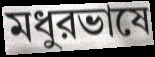
মধুরভাষে